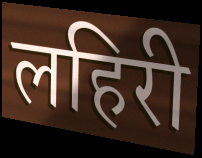
लहिरी